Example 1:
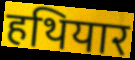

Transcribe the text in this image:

हथियार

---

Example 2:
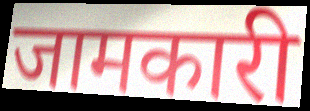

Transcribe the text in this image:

जामकारी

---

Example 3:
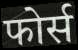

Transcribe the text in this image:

फोर्स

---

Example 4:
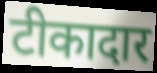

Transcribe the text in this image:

टीकादार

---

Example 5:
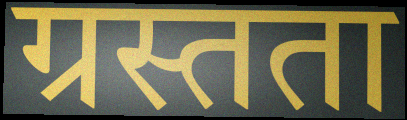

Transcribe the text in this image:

ग्रस्तता